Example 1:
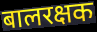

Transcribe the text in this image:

बालरक्षक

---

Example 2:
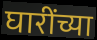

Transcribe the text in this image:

घारींच्या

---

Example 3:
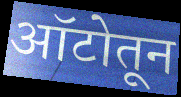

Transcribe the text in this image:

ऑटोतून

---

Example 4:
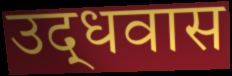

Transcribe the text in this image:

उद्धवास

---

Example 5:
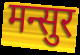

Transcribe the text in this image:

मन्सुर